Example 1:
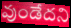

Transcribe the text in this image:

వుండేదని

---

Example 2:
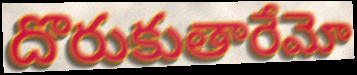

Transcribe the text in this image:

దొరుకుతారేమో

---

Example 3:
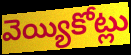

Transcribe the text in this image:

వెయ్యికోట్లు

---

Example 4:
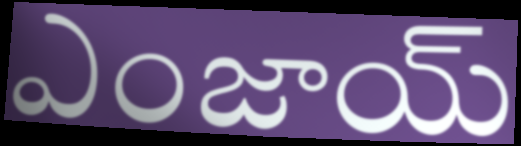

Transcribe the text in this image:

ఎంజాయ్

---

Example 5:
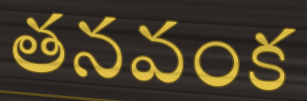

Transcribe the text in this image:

తనవంక